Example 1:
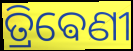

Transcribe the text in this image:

ତ୍ରିଵେଣୀ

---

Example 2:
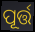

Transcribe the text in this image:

ପୂର୍ତ୍ତ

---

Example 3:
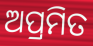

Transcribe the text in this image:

ଅପ୍ରମିତ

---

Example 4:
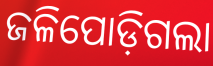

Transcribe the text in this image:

ଜଳିପୋଡ଼ିଗଲା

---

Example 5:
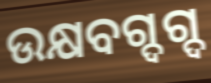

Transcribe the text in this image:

ଉକ୍ଷବଗ୍ଦଗ୍ଦ